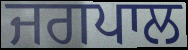
ਜਗਪਾਲ